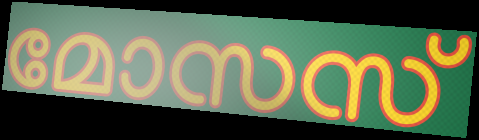
മോസസ്